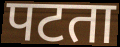
पटता